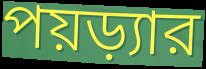
পয়ড়্যার